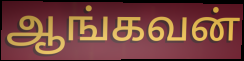
ஆங்கவன்